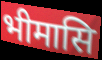
भीमासि